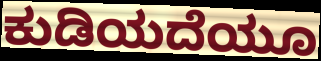
ಕುಡಿಯದೆಯೂ